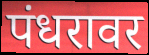
पंधरावर